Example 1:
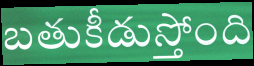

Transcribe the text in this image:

బతుకీడుస్తోంది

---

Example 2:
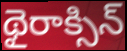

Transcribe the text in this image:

థైరాక్సిన్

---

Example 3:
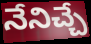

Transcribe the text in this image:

నేనిచ్చే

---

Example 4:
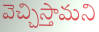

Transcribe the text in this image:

వెచ్చిస్తామని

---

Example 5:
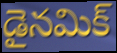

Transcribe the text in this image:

డైనమిక్